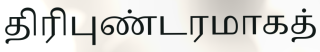
திரிபுண்டரமாகத்